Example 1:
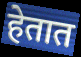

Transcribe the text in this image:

हेतात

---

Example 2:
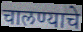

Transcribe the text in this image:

चालण्याचे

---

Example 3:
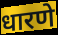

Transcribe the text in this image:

धारणे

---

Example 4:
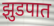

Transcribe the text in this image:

झुडपात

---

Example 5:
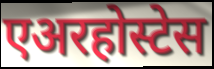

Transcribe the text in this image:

एअरहोस्टेस